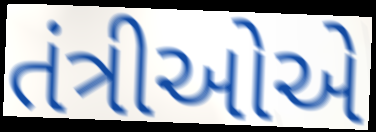
તંત્રીઓએ